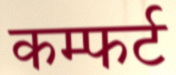
कम्फर्ट